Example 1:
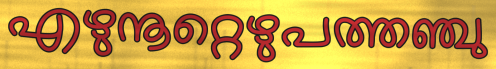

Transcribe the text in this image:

എഴുനൂറ്റെഴുപത്തഞ്ചു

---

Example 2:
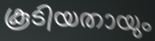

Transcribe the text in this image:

കൂടിയതായും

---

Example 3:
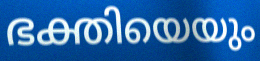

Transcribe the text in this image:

ഭക്തിയെയും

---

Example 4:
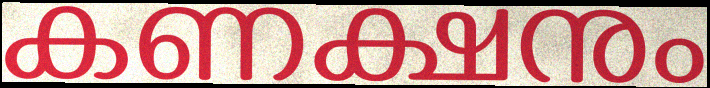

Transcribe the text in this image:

കണക്ഷനും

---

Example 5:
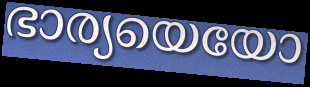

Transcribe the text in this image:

ഭാര്യയെയോ